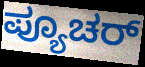
ಪ್ಯೂಚರ್